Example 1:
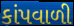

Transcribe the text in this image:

કાંપવાળી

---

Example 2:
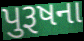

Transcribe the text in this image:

પુરૂષના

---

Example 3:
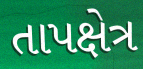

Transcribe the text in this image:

તાપક્ષેત્ર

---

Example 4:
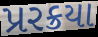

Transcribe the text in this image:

પ્રરક્રયા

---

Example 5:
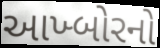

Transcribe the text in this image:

આખ્બોરનો